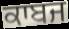
ਕਾਬਜ